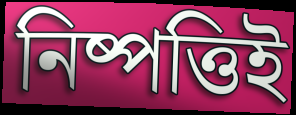
নিষ্পত্তিই